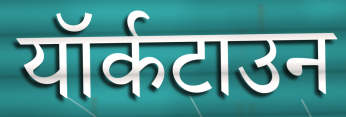
यॉर्कटाउन